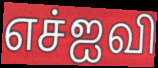
எச்ஐவி